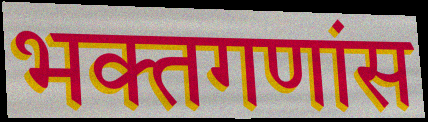
भक्तगणांस